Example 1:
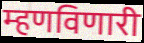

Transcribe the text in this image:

म्हणविणारी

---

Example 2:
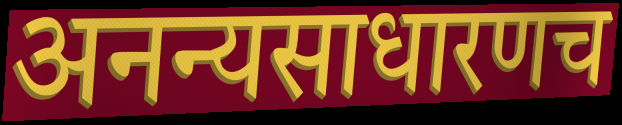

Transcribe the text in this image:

अनन्यसाधारणच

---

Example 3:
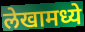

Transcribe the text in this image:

लेखामध्ये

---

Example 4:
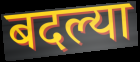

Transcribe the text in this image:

बदल्या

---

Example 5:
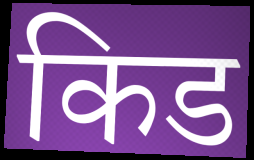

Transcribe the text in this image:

किड